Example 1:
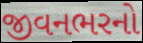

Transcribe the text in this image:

જીવનભરનો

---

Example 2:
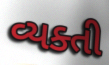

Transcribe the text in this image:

વ્યક્તી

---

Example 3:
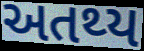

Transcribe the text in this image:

અતથ્ય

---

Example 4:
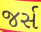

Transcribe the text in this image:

જર્સ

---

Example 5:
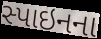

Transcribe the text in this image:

સ્પાઇનના